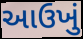
આઉખું